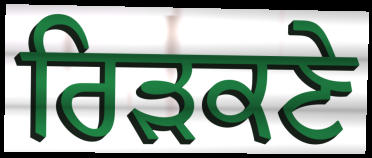
ਰਿੜਕਣੇ